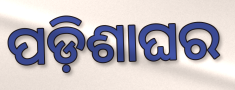
ପଡ଼ିଶାଘର